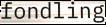
fondling